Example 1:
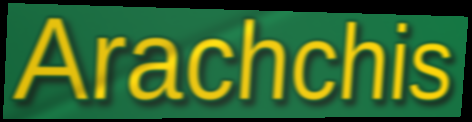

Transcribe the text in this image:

Arachchis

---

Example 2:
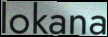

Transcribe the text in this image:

lokana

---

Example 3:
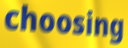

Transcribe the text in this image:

choosing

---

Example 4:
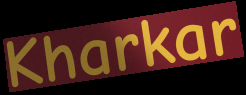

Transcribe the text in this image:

Kharkar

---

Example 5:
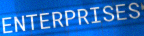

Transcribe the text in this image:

ENTERPRISES